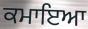
ਕਮਾਇਆ